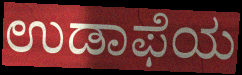
ಉಡಾಫೆಯ